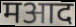
मआद